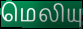
மெலியு